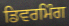
ਡਿਵਰਮਿੰਗ